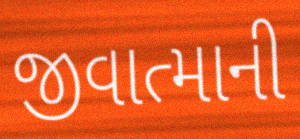
જીવાત્માની